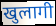
खुलागी